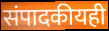
संपादकीयही